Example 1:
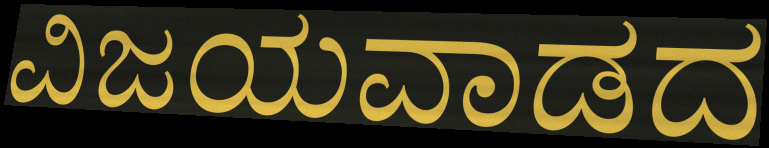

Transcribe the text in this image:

ವಿಜಯವಾಡದ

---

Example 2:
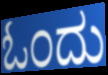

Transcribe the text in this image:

ಓಂದು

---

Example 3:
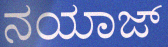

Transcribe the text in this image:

ನಯಾಜ್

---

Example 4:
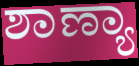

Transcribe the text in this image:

ಶಾಣ್ಯಾ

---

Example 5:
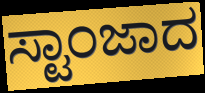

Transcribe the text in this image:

ಸ್ಟಾಂಜಾದ